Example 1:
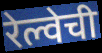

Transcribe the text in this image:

रेल्वेची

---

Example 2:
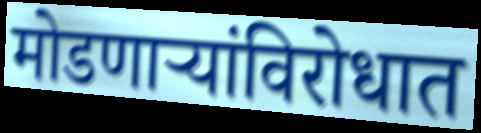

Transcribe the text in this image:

मोडणाऱ्यांविरोधात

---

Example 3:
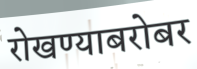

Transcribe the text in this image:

रोखण्याबरोबर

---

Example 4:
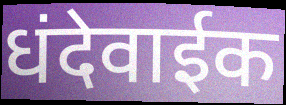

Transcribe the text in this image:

धंदेवाईक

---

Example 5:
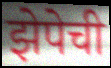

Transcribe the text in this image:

झेपेची